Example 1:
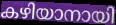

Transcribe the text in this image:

കഴിയാനായി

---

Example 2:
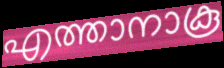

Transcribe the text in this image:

എത്താനാകൂ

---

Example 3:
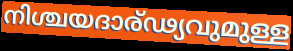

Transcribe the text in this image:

നിശ്ചയദാര്ഢ്യവുമുള്ള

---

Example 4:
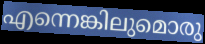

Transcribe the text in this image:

എന്നെങ്കിലുമൊരു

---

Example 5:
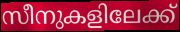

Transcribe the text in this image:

സീനുകളിലേക്ക്